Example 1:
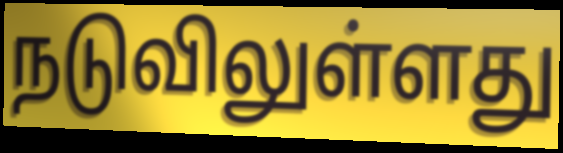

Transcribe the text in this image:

நடுவிலுள்ளது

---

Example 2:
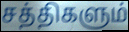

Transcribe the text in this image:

சத்திகளும்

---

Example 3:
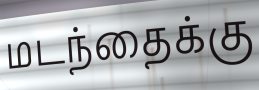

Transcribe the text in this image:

மடந்தைக்கு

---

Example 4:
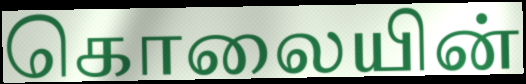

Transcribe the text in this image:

கொலையின்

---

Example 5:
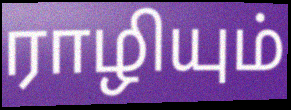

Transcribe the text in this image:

ராழியும்